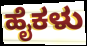
ಹೈಕಳು